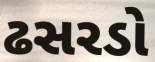
ઢસરડો